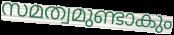
സമത്വമുണ്ടാകും